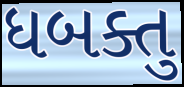
ધબક્તુ